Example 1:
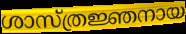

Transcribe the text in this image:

ശാസ്ത്രജ്ഞനായ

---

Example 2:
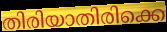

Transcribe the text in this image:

തിരിയാതിരിക്കെ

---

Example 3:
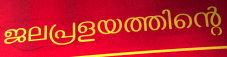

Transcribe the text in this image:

ജലപ്രളയത്തിന്റെ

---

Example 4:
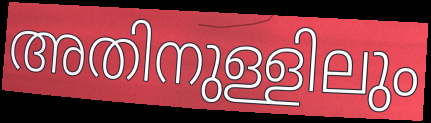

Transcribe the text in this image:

അതിനുള്ളിലും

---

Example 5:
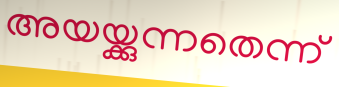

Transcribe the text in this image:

അയയ്ക്കുന്നതെന്ന്